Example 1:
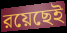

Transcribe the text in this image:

রয়েছেই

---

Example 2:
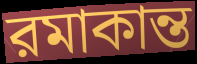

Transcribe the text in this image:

রমাকান্ত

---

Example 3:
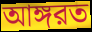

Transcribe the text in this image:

আঙ্গরত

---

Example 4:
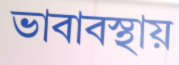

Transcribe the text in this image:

ভাবাবস্থায়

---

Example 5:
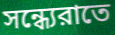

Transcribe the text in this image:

সন্ধ্যেরাতে